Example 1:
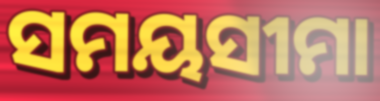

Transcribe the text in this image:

ସମୟସୀମା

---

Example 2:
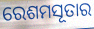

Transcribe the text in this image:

ରେଶମସୂତାର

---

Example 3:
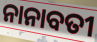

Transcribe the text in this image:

ନାନାବତୀ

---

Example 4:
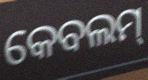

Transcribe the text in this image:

କେବଲମ୍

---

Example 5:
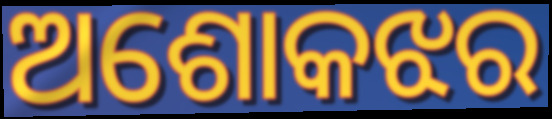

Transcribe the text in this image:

ଅଶୋକଝର